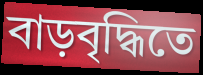
বাড়বৃদ্ধিতে